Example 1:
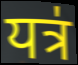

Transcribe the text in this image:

यत्र॑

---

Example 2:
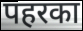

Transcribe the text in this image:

पहरका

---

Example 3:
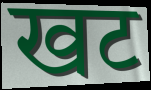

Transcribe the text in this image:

खट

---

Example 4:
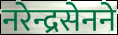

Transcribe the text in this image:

नरेन्द्रसेनने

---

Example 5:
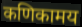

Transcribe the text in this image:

कणिकामय